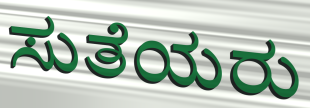
ಸುತೆಯರು